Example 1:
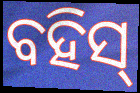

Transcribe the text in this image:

ବହିସ୍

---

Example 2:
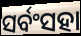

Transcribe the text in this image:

ସର୍ବଂସହା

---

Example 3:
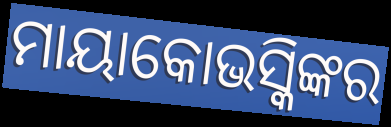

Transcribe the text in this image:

ମାୟାକୋଭସ୍କିଙ୍କର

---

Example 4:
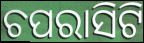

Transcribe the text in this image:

ଚପରାସିଟି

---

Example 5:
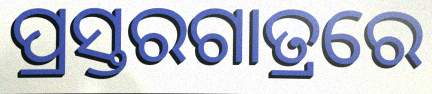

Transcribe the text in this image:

ପ୍ରସ୍ତରଗାତ୍ରରେ